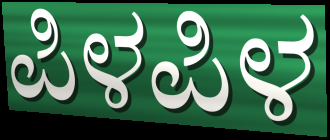
ಪಿಳಪಿಳ